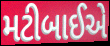
મટીબાઈએ